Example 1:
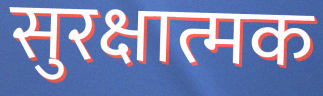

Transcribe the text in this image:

सुरक्षात्मक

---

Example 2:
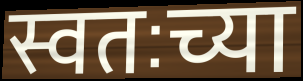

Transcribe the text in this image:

स्वतःच्या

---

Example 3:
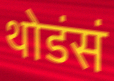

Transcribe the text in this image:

थोडंसं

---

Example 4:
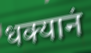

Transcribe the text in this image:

धक्यानं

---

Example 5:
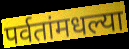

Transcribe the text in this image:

पर्वतांमधल्या